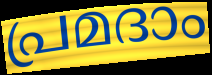
പ്രമദാം